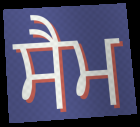
ਸੈਮ